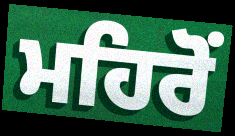
ਮਹਿਰੋਂ